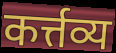
कर्त्तव्य